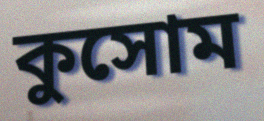
কুসোম